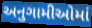
અનુગામીઓમાં